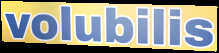
volubilis